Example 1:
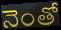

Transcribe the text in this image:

నెంతో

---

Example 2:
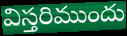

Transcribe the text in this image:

విస్తరిముందు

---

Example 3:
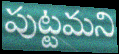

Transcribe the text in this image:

పుట్టమని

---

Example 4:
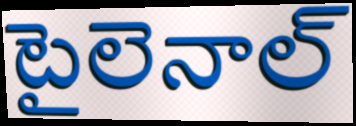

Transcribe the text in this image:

టైలెనాల్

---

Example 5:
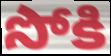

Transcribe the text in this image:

సోకి